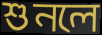
শুনলে